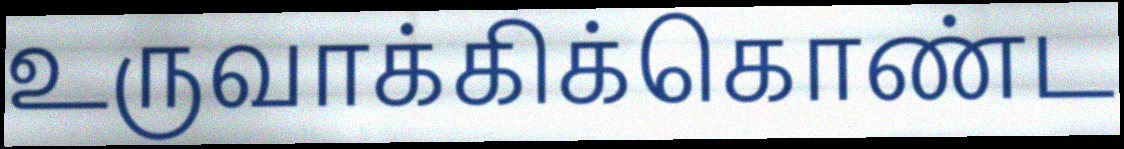
உருவாக்கிக்கொண்ட